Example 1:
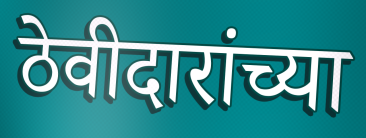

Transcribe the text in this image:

ठेवीदारांच्या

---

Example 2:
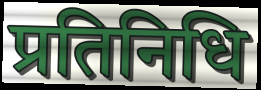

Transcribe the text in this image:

प्रतिनिधि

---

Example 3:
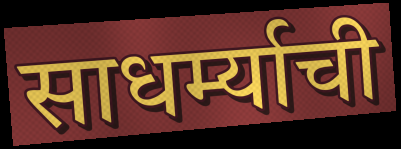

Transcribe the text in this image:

साधर्म्याची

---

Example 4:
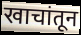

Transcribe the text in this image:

खाचांतून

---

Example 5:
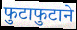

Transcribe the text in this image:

फुटाफुटाने